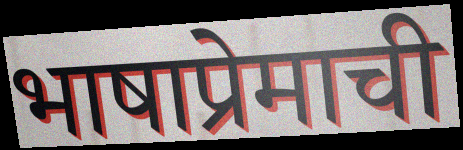
भाषाप्रेमाची